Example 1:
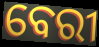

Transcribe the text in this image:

ବେରୀ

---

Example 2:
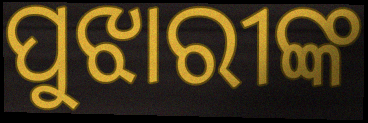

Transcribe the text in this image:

ପୁଝାରୀଙ୍କ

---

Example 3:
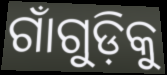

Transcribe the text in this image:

ଗାଁଗୁଡ଼ିକୁ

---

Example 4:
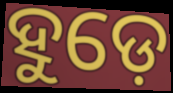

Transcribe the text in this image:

ହୁଡ଼େ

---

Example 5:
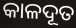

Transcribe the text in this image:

କାଳଦୂତ